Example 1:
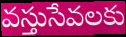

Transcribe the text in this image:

వస్తుసేవలకు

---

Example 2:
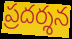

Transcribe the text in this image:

ప్రదర్శన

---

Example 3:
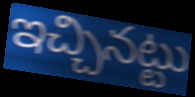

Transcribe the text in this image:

ఇచ్చినట్టు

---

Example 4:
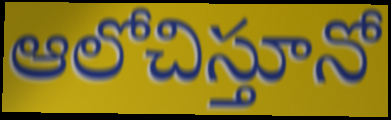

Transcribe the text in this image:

ఆలోచిస్తూనో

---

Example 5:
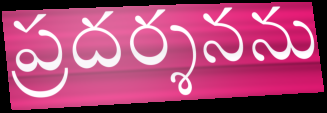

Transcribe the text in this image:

ప్రదర్శనను